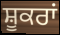
ਸ਼ੂਕਰਾਂ